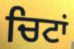
ਚਿਟਾਂ